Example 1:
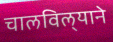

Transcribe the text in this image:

चालविल्याने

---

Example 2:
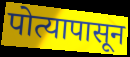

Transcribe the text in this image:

पोत्यापासून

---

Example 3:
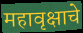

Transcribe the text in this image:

महावृक्षाचे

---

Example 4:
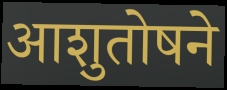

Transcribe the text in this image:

आशुतोषने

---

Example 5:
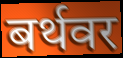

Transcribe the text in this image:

बर्थवर